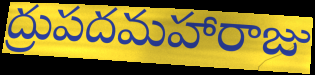
ద్రుపదమహారాజు